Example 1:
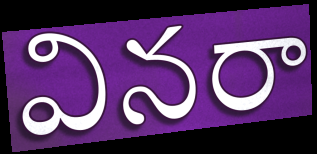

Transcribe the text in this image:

వినరా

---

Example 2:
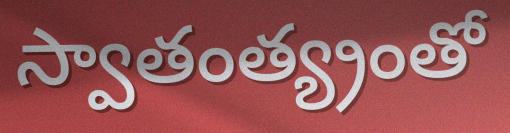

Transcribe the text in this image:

స్వాతంత్య్రంతో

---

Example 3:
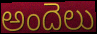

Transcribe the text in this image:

అందెలు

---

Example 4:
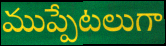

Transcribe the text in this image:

ముప్పేటలుగా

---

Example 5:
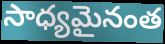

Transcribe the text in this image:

సాధ్యమైనంత